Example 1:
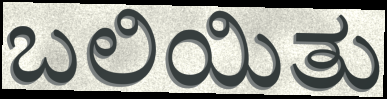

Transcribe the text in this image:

ಬಲಿಯಿತು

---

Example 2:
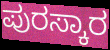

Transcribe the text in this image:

ಪುರಸ್ಕಾರ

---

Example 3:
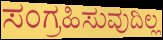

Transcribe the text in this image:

ಸಂಗ್ರಹಿಸುವುದಿಲ್ಲ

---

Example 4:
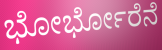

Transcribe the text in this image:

ಭೋರ್ಭೋರೆನೆ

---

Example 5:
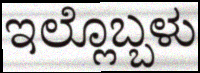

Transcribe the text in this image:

ಇಲ್ಲೊಬ್ಬಳು